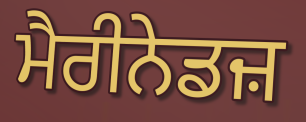
ਮੈਰੀਨੇਡਜ਼